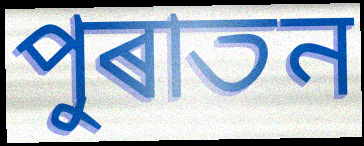
পুৰাতন